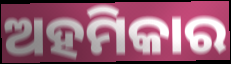
ଅହମିକାର